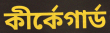
কীর্কেগার্ড